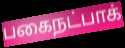
பகைநட்பாக்